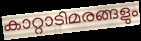
കാറ്റാടിമരങ്ങളും